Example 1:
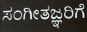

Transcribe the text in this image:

ಸಂಗೀತಜ್ಞರಿಗೆ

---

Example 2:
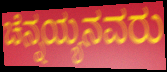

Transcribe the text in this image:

ಚೆನ್ನಯ್ಯನವರು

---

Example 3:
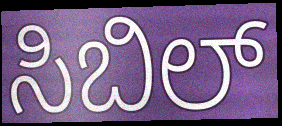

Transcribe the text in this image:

ಸಿಬಿಲ್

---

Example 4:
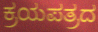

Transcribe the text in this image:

ಕ್ರಯಪತ್ರದ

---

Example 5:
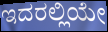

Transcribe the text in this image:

ಇದರಲ್ಲಿಯೇ